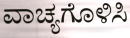
ವಾಚ್ಯಗೊಳಿಸಿ